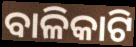
ବାଳିକାଟି